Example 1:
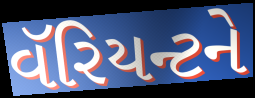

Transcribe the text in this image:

વૅરિયન્ટને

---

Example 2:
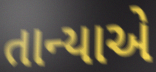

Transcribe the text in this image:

તાન્યાએ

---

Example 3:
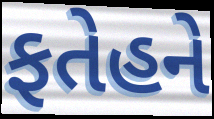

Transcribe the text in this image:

ફતેહને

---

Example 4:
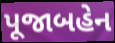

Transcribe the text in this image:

પૂજાબહેન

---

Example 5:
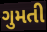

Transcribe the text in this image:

ગુમતી